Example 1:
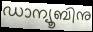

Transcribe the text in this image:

ഡാന്യൂബിനു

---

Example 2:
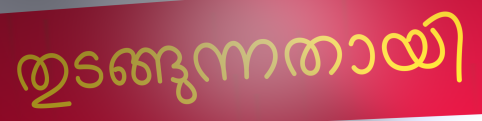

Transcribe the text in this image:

തുടങ്ങുന്നതായി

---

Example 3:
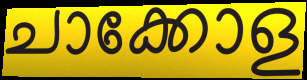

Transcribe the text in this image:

ചാക്കോള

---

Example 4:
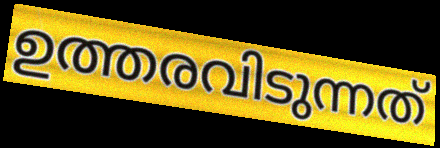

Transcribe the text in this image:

ഉത്തരവിടുന്നത്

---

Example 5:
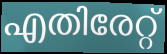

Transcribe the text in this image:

എതിരേറ്റ്